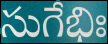
సుగేభిః